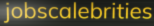
jobscalebrities